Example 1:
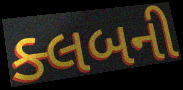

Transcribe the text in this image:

ક્લબની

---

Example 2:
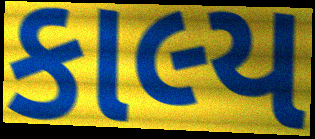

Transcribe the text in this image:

કાલ્ય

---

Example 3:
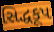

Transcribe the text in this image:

સિદ્ધકૂપ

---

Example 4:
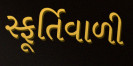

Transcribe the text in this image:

સ્ફૂર્તિવાળી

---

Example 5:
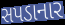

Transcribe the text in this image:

સપડાનાર